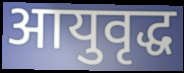
आयुवृद्ध